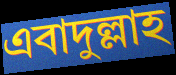
এবাদুল্লাহ